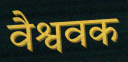
वैश्ववक